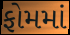
ફોમમાં